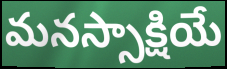
మనస్సాక్షియే